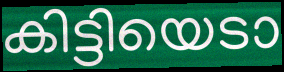
കിട്ടിയെടാ